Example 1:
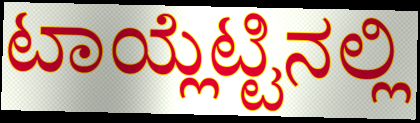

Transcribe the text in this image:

ಟಾಯ್ಲೆಟ್ಟಿನಲ್ಲಿ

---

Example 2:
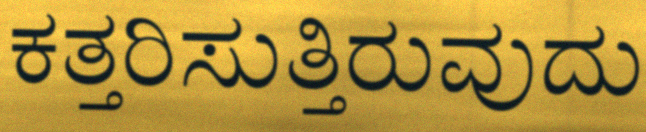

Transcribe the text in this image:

ಕತ್ತರಿಸುತ್ತಿರುವುದು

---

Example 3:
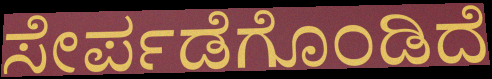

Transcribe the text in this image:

ಸೇರ್ಪಡೆಗೊಂಡಿದೆ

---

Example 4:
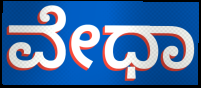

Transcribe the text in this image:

ವೇಧಾ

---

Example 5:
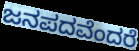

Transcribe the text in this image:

ಜನಪದವೆಂದರೆ